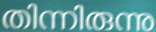
തിന്നിരുന്നു